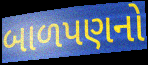
બાળપણનો